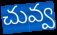
చువ్వ